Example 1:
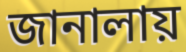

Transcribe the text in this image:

জানালায়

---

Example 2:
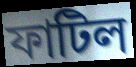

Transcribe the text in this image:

ফাটিল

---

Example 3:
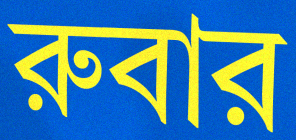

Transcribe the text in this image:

রুবার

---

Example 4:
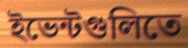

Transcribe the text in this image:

ইভেন্টগুলিতে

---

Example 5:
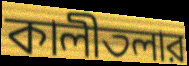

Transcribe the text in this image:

কালীতলার